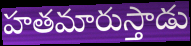
హతమారుస్తాడు